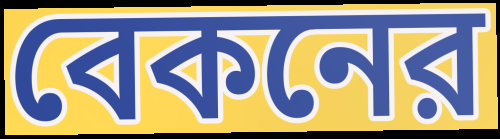
বেকনের